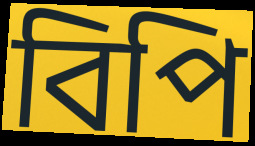
বিপি